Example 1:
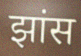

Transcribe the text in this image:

झांस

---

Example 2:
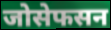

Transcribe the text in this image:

जोसेफसन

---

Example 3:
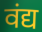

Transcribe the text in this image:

वंद्य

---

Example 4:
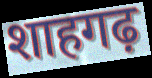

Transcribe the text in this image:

शाहगढ़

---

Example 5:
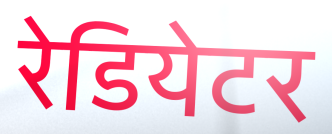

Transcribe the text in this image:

रेडियेटर